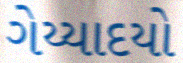
ગેય્યાદયો